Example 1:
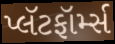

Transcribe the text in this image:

પ્લૅટફૉર્મ્સ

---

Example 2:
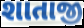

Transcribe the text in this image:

શાતાજી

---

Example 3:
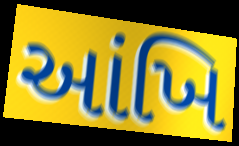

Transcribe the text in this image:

આંખિ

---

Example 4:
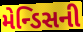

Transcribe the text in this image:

મેન્ડિસની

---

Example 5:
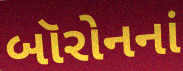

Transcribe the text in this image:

બૉરોનનાં